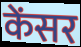
केंसर